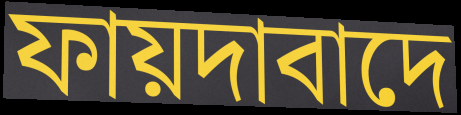
ফায়দাবাদে